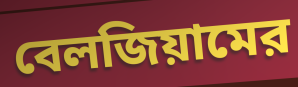
বেলজিয়ামের